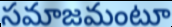
సమాజమంటూ